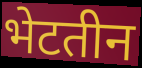
भेटतीन